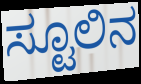
ಸ್ಟೂಲಿನ